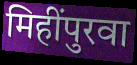
मिहींपुरवा